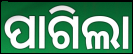
ପାଗିଲା